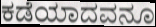
ಕಡೆಯಾದವನೂ